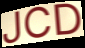
JCD